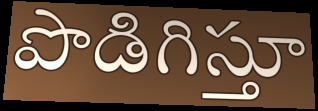
పొడిగిస్తూ